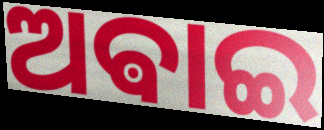
ଅଵାଇ